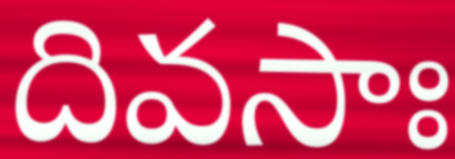
దివసాః